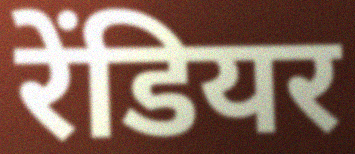
रेंडियर